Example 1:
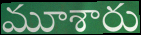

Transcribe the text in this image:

మూశారు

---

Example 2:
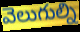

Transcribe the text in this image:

వెలుగుల్ని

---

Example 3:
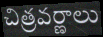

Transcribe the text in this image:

చిత్రవర్ణాలు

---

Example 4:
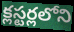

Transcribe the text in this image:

క్లస్టర్లలోని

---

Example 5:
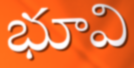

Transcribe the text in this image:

భూవి